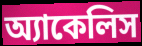
অ্যাকেলিস